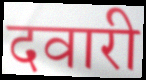
दवारी